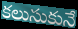
కలుసుకునే